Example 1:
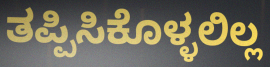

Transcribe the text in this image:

ತಪ್ಪಿಸಿಕೊಳ್ಳಲಿಲ್ಲ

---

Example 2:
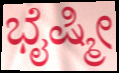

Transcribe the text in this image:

ಭೈಷ್ಮೀ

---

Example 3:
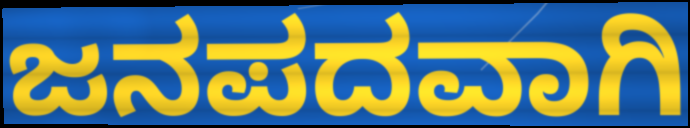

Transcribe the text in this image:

ಜನಪದವಾಗಿ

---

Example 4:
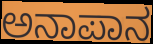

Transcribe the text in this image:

ಅನಾಪಾನ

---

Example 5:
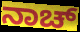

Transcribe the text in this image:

ನಾಚ್